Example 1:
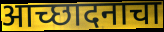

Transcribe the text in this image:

आच्छादनाचा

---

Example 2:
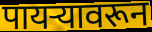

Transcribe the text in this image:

पायऱ्यावरून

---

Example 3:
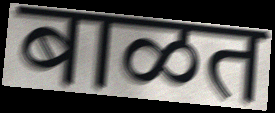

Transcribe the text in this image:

बाळत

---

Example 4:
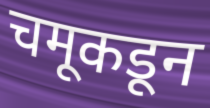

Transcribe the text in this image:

चमूकडून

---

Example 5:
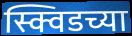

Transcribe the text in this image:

स्क्विडच्या